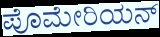
ಪೊಮೇರಿಯನ್